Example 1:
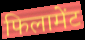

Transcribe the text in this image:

फिलामेंट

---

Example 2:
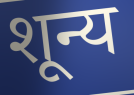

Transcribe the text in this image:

शून्य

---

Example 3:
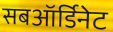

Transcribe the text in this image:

सबऑर्डिनेट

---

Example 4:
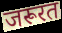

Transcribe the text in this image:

जरूरत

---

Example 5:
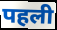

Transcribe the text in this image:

पहली